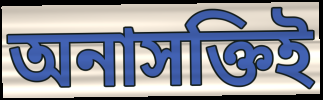
অনাসক্তিই